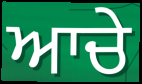
ਆਚੇ